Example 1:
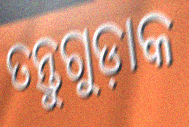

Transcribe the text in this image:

ତନ୍ତୁଗୁଡ଼ାକ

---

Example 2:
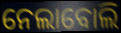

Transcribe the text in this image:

ନେଲାବୋଲି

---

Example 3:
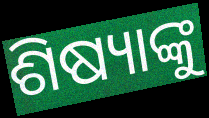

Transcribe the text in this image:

ଶିଷ୍ୟାଙ୍କୁ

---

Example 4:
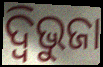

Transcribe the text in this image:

ଦ୍ଵିଭୁଜା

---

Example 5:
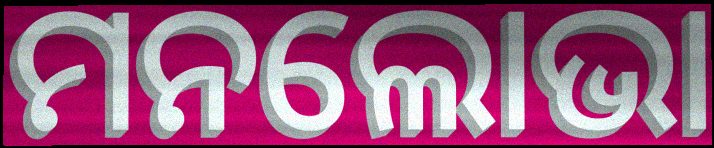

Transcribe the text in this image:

ମନଲୋଭା